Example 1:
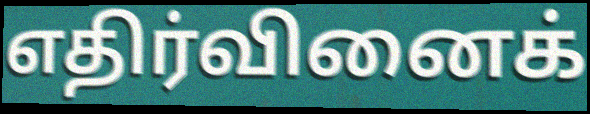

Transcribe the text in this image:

எதிர்வினைக்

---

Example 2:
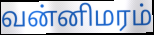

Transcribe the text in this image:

வன்னிமரம்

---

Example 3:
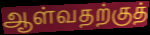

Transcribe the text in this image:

ஆள்வதற்குத்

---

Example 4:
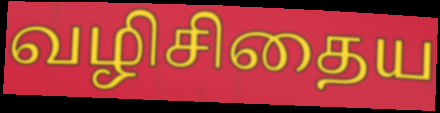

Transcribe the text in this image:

வழிசிதைய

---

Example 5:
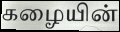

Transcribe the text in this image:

கழையின்